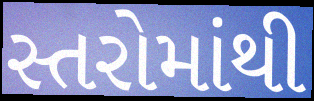
સ્તરોમાંથી